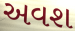
અવશ